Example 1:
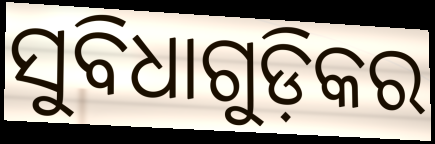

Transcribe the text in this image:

ସୁବିଧାଗୁଡ଼ିକର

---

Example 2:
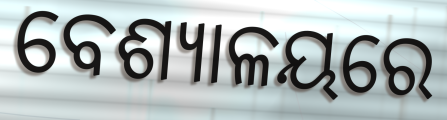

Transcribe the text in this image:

ବେଶ୍ୟାଳୟରେ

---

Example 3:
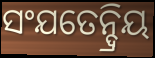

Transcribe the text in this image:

ସଂଯତେନ୍ଦ୍ରିୟ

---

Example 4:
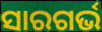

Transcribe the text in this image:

ସାରଗର୍ଭ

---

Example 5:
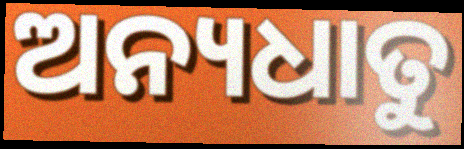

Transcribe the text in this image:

ଅନ୍ୟଧାତୁ